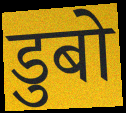
डुबो